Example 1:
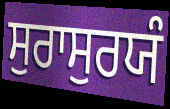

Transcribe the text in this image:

ਸੁਰਾਸੁਰਯੰ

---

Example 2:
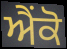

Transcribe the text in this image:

ਐਂਕੋ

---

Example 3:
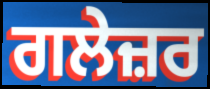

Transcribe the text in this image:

ਗਲੇਜ਼ਰ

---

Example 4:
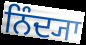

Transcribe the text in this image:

ਨਿੰਦ੍ਯਾ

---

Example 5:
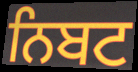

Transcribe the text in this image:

ਨਿਬਟ